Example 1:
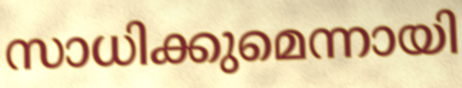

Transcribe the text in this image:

സാധിക്കുമെന്നായി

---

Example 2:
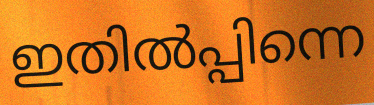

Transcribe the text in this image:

ഇതിൽപ്പിന്നെ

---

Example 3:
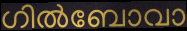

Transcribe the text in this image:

ഗിൽബോവാ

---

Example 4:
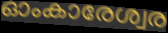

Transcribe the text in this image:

ഓംകാരേശ്വര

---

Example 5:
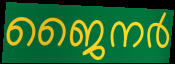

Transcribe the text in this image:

ജൈനർ